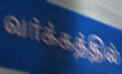
வர்க்கத்தில்